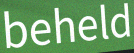
beheld